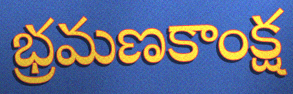
భ్రమణకాంక్ష